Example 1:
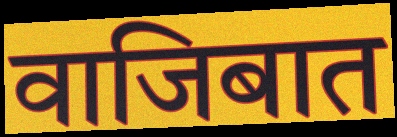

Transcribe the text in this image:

वाजिबात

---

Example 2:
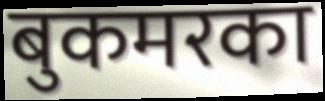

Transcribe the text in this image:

बुकमरका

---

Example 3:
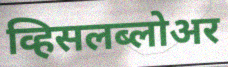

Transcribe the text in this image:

व्हिसलब्लोअर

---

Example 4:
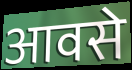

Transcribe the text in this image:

आवसे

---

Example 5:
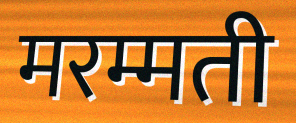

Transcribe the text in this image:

मरम्मती